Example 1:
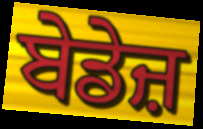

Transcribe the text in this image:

ਬੇਡੇਜ਼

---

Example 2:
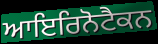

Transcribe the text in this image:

ਆਇਰਿਨੋਟੈਕਨ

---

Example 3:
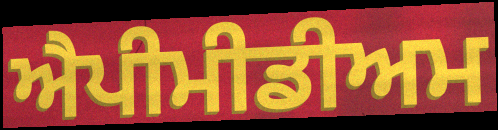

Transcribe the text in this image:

ਐਪੀਮੀਡੀਅਮ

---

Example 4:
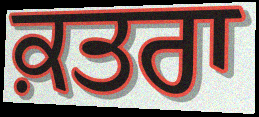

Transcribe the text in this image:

ਕ਼ਤਰਾ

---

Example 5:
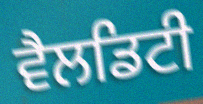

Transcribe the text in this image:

ਵੈਲਡਿਟੀ